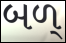
બળ્